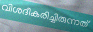
വിശദീകരിച്ചിരുന്നത്